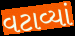
વટાવ્યાં